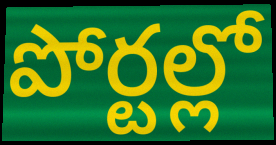
పోర్టల్లో